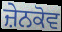
ਜ਼ੇਨਕੋਵ